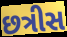
છત્રીસ